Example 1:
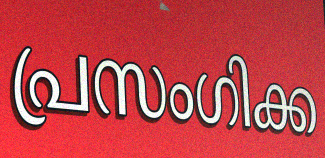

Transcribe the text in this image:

പ്രസംഗിക്ക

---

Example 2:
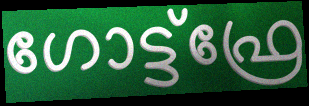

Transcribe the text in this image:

ഗോട്ട്ഫ്രേ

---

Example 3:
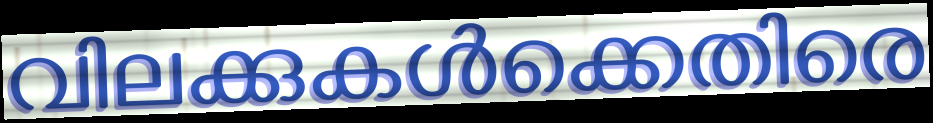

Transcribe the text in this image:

വിലക്കുകൾക്കെതിരെ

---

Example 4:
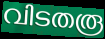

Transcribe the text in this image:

വിടതരൂ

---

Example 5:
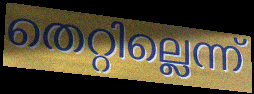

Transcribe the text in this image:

തെറ്റില്ലെന്ന്